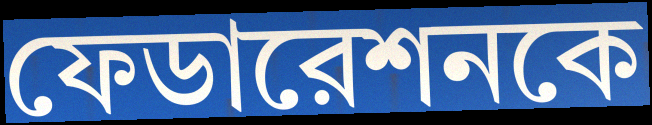
ফেডারেশনকে